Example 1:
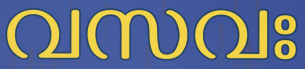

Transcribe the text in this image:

വസവഃ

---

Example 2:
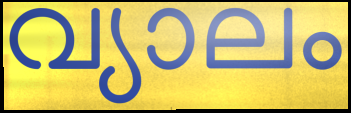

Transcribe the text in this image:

വ്യാലം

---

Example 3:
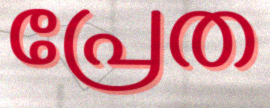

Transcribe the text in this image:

പ്രേത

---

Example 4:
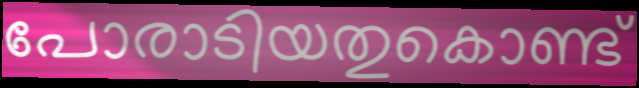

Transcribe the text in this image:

പോരാടിയതുകൊണ്ട്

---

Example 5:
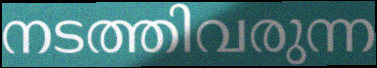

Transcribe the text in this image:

നടത്തിവരുന്ന